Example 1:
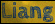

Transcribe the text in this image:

Liang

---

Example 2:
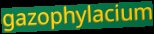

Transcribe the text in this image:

gazophylacium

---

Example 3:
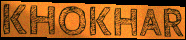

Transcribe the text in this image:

KHOKHAR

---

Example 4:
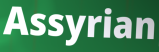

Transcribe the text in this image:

Assyrian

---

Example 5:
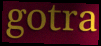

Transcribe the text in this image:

gotra